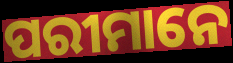
ପରୀମାନେ